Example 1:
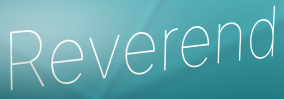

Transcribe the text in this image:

Reverend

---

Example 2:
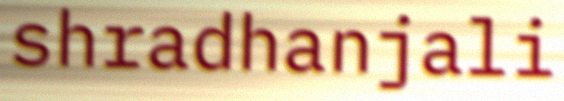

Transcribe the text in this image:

shradhanjali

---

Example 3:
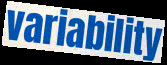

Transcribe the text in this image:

variability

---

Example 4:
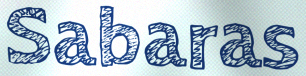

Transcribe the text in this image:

Sabaras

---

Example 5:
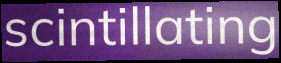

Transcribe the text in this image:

scintillating